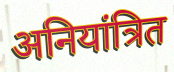
अनियांत्रित